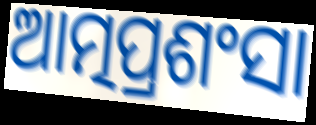
ଆତ୍ମପ୍ରଶଂସା